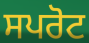
ਸਪਰੋਟ